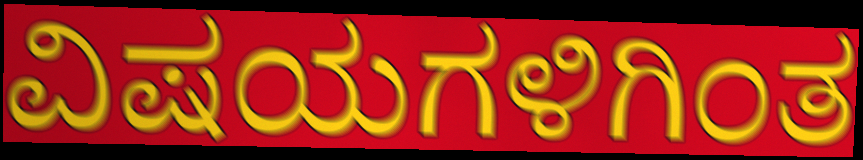
ವಿಷಯಗಳಿಗಿಂತ